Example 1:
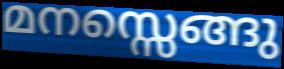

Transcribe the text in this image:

മനസ്സെങ്ങു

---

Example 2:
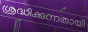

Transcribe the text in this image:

ശ്രദ്ധിക്കുന്നതായി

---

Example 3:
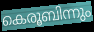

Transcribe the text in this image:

കെരൂബിന്നും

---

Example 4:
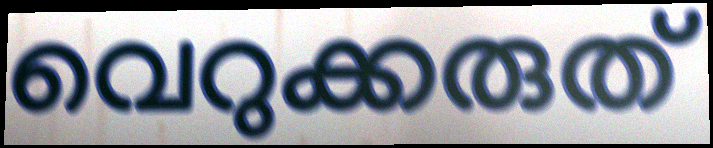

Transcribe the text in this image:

വെറുക്കരുത്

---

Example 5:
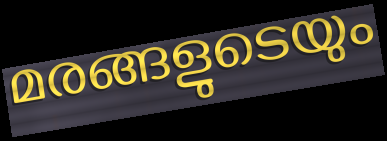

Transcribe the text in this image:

മരങ്ങളുടെയും